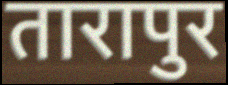
तारापुर